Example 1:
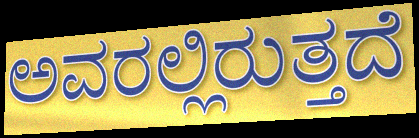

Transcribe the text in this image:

ಅವರಲ್ಲಿರುತ್ತದೆ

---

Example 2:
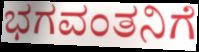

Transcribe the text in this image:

ಭಗವಂತನಿಗೆ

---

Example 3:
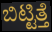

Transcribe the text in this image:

ಬಿಟ್ಟಿತ್ತೆ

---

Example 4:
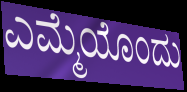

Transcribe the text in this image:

ಎಮ್ಮೆಯೊಂದು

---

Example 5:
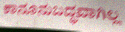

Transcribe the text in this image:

ಕಾನೂನುಬದ್ಧವಾಗಿಲ್ಲ